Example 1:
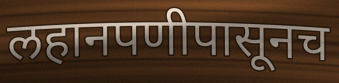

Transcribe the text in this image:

लहानपणीपासूनच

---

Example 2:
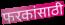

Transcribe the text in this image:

फरकांसाठी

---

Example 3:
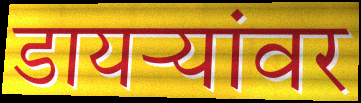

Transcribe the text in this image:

डायऱ्यांवर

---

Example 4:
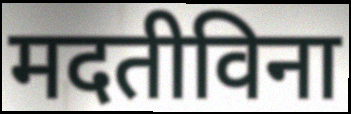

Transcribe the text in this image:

मदतीविना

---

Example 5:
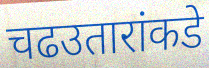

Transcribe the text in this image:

चढउतारांकडे